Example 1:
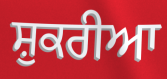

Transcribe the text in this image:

ਸ਼ੁਕਰੀਆ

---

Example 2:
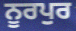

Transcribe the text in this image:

ਨੂਰਪੁਰ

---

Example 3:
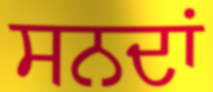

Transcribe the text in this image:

ਸਨਦਾਂ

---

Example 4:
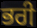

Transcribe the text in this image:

ਭਰੀ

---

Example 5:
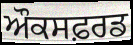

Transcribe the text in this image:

ਔਕਸਫ਼ਰਡ